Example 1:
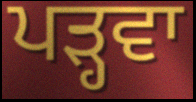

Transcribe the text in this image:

ਪੜ੍ਹਵਾ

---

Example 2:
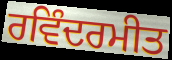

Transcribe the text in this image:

ਰਵਿੰਦਰਮੀਤ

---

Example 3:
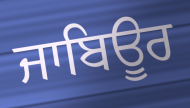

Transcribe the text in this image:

ਜਾਬਿਊਰ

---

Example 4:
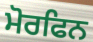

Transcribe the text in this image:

ਮੋਰਫਿਨ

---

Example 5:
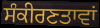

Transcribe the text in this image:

ਸੰਕੀਰਣਤਾਵਾਂ